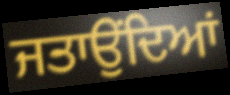
ਜਤਾਉੰਦਿਆਂ